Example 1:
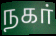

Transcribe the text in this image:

நகர்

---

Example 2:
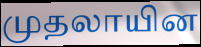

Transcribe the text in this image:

முதலாயின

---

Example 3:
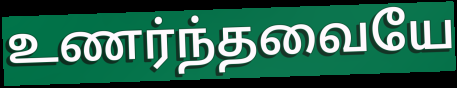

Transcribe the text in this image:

உணர்ந்தவையே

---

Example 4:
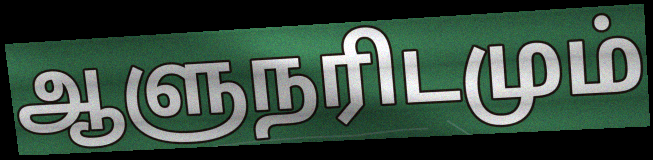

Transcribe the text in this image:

ஆளுநரிடமும்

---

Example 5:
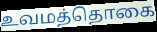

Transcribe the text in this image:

உவமத்தொகை